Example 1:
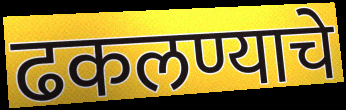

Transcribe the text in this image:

ढकलण्याचे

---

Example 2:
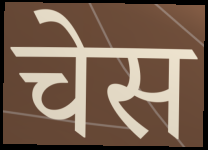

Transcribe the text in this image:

चेस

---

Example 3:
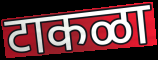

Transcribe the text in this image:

टाकळा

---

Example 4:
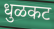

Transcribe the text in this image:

धुळकट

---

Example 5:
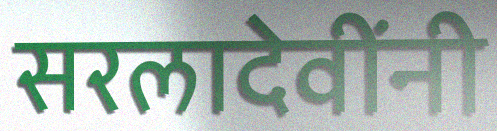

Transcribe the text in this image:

सरलादेवींनी